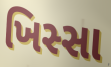
ખિસ્સા